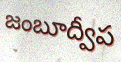
జంబూద్వీప